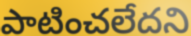
పాటించలేదని